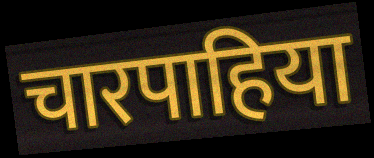
चारपाहिया